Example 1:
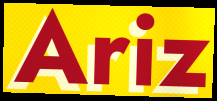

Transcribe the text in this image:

Ariz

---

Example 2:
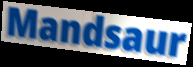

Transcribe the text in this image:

Mandsaur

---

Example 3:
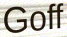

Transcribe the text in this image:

Goff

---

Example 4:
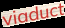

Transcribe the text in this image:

viaduct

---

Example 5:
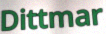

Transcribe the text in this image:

Dittmar